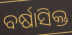
ବର୍ଷାସିକ୍ତ